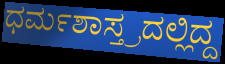
ಧರ್ಮಶಾಸ್ತ್ರದಲ್ಲಿದ್ದ